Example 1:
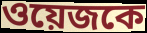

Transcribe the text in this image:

ওয়েজকে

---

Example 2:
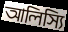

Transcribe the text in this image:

আলিস্যি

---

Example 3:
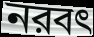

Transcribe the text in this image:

নরবৎ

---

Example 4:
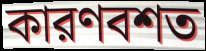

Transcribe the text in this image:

কারণবশত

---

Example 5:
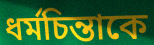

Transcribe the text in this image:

ধর্মচিন্তাকে